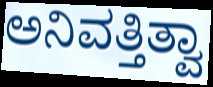
ಅನಿವತ್ತಿತ್ವಾ